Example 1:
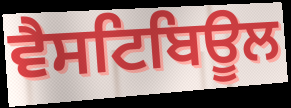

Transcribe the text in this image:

ਵੈਸਟਿਬਿਊਲ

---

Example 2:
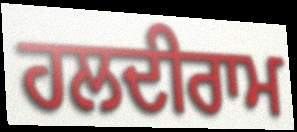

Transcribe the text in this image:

ਹਲਦੀਰਾਮ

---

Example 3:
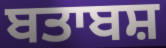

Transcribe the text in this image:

ਬਤਾਬਸ਼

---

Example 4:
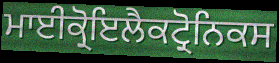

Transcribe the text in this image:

ਮਾਈਕ੍ਰੋਇਲੈਕਟ੍ਰੋਨਿਕਸ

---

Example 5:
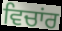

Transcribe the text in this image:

ਵਿਚਾਂਰ